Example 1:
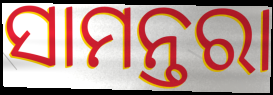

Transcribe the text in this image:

ସାମନ୍ତରା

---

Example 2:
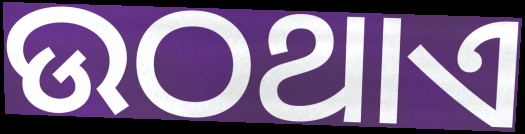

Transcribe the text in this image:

ଉଠଥାଏ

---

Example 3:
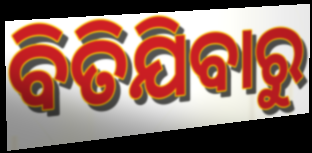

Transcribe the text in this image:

ବିତିଯିବାରୁ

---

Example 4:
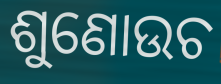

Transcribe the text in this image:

ଶୁଣୋଉଚ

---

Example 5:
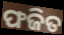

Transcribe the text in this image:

ଫଜିତ